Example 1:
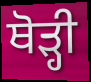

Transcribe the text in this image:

ਥੋਡ਼੍ਹੀ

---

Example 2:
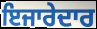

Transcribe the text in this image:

ਇਜਾਰੇਦਾਰ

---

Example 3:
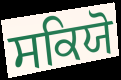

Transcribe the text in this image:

ਸਕਿਯੋ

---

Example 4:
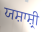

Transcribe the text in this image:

ਯਸ਼ਾਸ਼੍ਰੀ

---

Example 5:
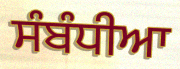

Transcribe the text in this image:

ਸੰਬੰਧੀਆ